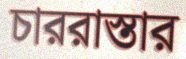
চাররাস্তার